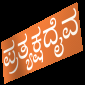
ಪ್ರತ್ಯಕ್ಷದೈವ